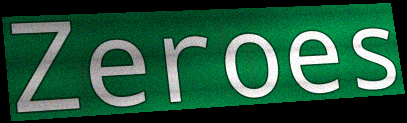
Zeroes